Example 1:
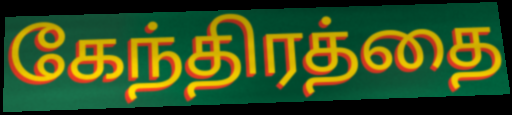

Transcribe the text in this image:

கேந்திரத்தை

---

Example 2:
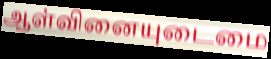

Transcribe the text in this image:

ஆள்வினையுடைமை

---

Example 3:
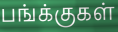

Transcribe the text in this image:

பங்க்குகள்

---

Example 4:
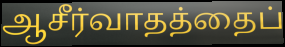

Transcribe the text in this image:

ஆசீர்வாதத்தைப்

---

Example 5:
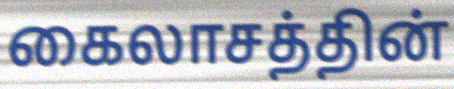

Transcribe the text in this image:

கைலாசத்தின்